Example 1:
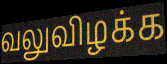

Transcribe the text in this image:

வலுவிழக்க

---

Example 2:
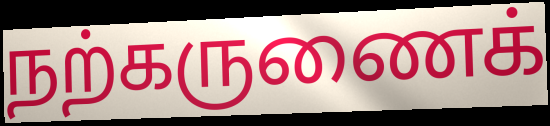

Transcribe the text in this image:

நற்கருணைக்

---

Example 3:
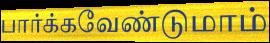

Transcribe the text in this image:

பார்க்கவேண்டுமாம்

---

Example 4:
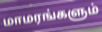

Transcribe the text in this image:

மாமரங்களும்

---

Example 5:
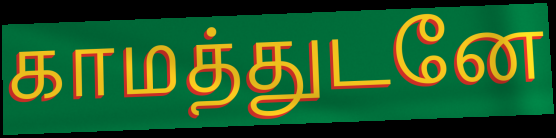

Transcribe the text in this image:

காமத்துடனே